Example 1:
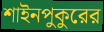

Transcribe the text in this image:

শাইনপুকুরের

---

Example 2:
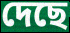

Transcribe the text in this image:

দেছে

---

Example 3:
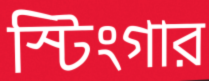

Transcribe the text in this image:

স্টিংগার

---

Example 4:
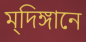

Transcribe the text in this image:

ম্‌দিঙ্গানে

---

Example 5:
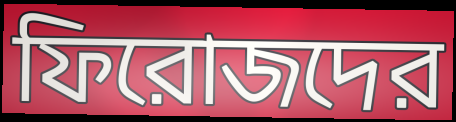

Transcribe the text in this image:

ফিরোজদের